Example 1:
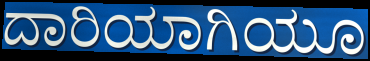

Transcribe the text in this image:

ದಾರಿಯಾಗಿಯೂ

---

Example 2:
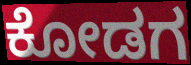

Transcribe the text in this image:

ಕೋಡಗ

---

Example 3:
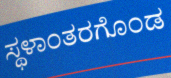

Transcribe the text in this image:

ಸ್ಥಳಾಂತರಗೊಂಡ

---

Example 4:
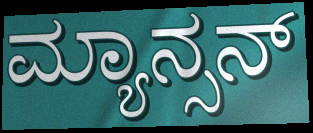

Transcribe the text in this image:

ಮ್ಯಾನ್ಸನ್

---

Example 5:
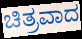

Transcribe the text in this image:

ಚಿತ್ರವಾದ